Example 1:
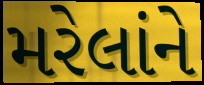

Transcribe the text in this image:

મરેલાંને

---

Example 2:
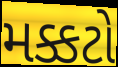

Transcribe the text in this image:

મક્કટો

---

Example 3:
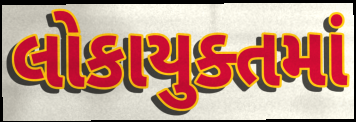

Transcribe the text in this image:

લોકાયુક્તમાં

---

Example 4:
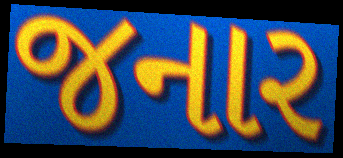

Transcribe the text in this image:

જનાર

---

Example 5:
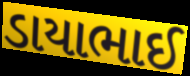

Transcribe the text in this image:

ડાયાભાઈ